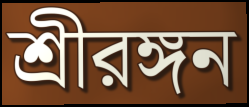
শ্রীরঙ্গন